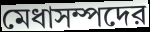
মেধাসম্পদের